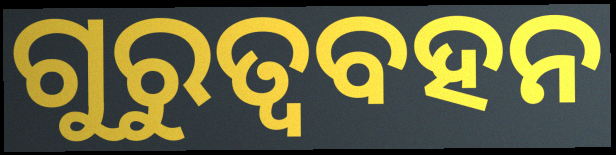
ଗୁରୁତ୍ୱବହନ